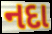
નદા